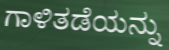
ಗಾಳಿತಡೆಯನ್ನು